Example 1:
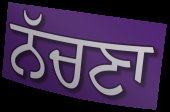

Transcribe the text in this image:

ਨੱਚਣਾ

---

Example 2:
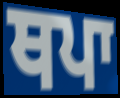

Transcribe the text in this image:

ਥਪਾ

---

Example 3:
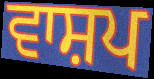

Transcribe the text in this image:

ਵਾਸ਼ਪ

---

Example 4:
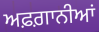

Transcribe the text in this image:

ਅਫ਼ਗ਼ਾਨੀਆਂ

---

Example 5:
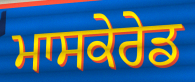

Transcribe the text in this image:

ਮਾਸਕੇਰੇਡ